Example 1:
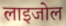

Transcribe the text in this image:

लाइजोल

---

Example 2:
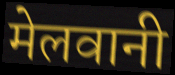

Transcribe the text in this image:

मेलवानी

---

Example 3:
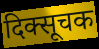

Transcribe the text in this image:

दिक्सूचक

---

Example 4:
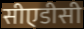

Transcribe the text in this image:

सीएडीसी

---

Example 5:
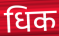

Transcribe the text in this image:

धिक